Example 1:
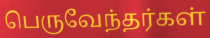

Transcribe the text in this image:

பெருவேந்தர்கள்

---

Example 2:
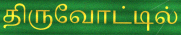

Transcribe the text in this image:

திருவோட்டில்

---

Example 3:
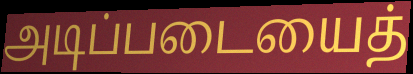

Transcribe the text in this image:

அடிப்படையைத்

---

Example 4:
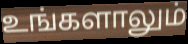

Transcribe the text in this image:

உங்களாலும்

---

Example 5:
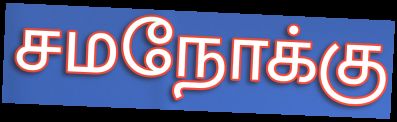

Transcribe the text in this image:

சமநோக்கு